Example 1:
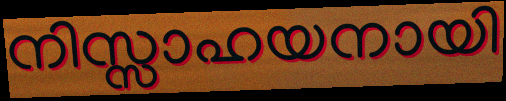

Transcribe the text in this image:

നിസ്സാഹയനായി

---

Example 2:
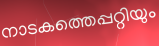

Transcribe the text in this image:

നാടകത്തെപ്പറ്റിയും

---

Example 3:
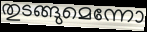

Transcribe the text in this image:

തുടങ്ങുമെന്നോ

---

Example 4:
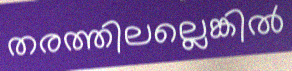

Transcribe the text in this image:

തരത്തിലല്ലെങ്കിൽ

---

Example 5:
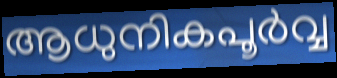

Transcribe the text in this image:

ആധുനികപൂർവ്വ